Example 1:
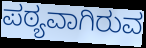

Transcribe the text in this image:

ಪಠ್ಯವಾಗಿರುವ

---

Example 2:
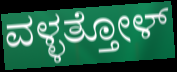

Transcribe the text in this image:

ವಳ್ಳತ್ತೋಳ್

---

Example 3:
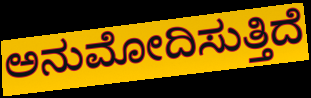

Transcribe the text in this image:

ಅನುಮೋದಿಸುತ್ತಿದೆ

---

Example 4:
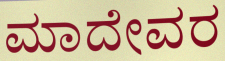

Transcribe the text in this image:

ಮಾದೇವರ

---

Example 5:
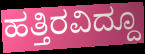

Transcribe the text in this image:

ಹತ್ತಿರವಿದ್ದೂ